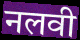
नलवी